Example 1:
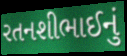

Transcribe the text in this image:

રતનશીભાઈનું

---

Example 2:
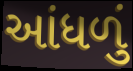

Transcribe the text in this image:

આંધળું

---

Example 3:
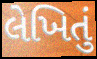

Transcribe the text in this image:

લેખિતું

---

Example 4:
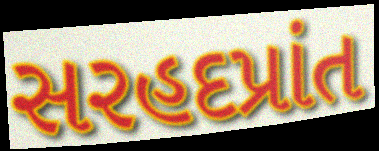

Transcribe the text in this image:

સરહદપ્રાંત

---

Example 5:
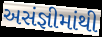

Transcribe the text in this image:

અસંજ્ઞીમાંથી